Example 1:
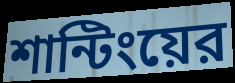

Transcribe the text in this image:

শান্টিংয়ের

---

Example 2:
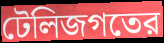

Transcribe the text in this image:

টেলিজগতের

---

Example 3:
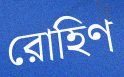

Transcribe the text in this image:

রোহিণ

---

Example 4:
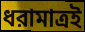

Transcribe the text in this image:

ধরামাত্রই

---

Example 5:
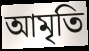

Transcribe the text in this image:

আমৃতি